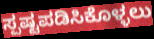
ಸ್ಪಷ್ಟಪಡಿಸಿಕೊಳ್ಳಲು